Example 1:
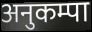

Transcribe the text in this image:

अनुकम्‍पा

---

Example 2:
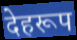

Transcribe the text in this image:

देहरूप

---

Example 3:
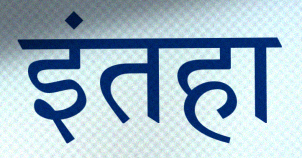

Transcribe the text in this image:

इंतहा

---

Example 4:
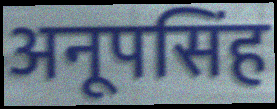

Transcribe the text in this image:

अनूपसिंह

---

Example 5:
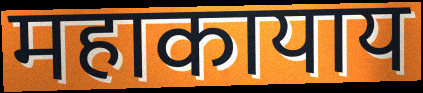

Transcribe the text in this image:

महाकायाय